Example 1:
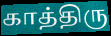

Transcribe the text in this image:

காத்திரு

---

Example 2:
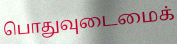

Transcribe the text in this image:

பொதுவுடைமைக்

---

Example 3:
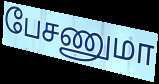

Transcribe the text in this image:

பேசணுமா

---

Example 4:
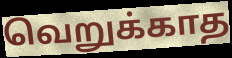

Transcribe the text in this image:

வெறுக்காத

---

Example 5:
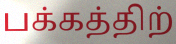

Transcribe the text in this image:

பக்கத்திற்